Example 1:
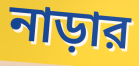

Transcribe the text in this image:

নাড়ার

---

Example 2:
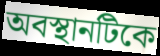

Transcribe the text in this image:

অবস্থানটিকে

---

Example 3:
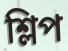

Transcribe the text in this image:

শ্লিপ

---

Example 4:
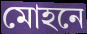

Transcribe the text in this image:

মোহনে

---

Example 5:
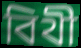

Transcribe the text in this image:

বিথী